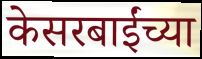
केसरबाईंच्या